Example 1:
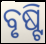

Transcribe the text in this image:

ବୃଷ୍ଟି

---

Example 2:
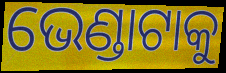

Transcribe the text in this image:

ଭେଣ୍ଡାଟାକୁ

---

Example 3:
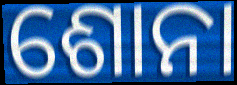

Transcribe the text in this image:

ଶୋନା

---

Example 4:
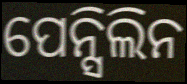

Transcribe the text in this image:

ପେନ୍ସିଲିନ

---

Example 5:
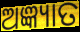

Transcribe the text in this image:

ଅଜ୍ଞ୍ୟାତ